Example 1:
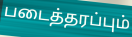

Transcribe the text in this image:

படைத்தரப்பும்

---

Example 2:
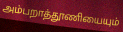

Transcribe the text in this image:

அம்பறாத்தூணியையும்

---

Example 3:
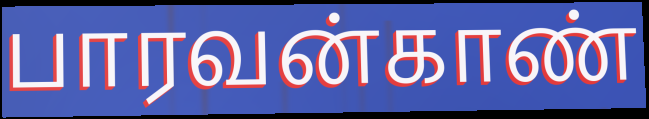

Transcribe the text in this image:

பாரவன்காண்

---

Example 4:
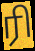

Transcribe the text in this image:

ரி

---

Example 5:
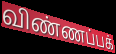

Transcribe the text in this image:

விண்ணப்பக்